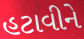
હટાવીને